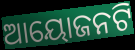
ଆୟୋଜନଟି